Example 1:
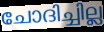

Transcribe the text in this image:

ചോദിച്ചില്ല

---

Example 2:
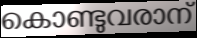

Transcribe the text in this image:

കൊണ്ടുവരാന്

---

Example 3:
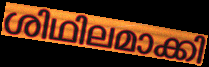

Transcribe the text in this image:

ശിഥിലമാക്കി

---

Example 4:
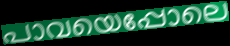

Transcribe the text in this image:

പാവയെപ്പോലെ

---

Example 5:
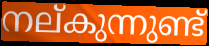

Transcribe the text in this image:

നല്കുന്നുണ്ട്